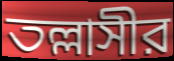
তল্লাসীর